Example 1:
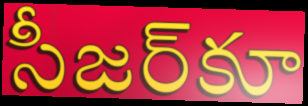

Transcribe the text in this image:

సీజర్‌కూ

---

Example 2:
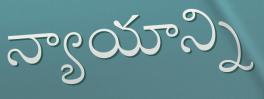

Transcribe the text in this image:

న్యాయాన్ని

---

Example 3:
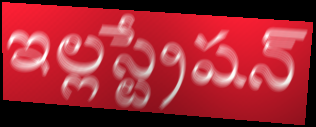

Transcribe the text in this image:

ఇల్లస్ట్రేషన్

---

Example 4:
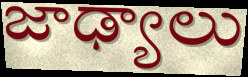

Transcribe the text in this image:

జాఢ్యాలు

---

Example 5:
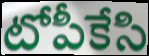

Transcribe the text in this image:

టోపీకేసి